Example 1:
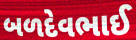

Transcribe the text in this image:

બળદેવભાઈ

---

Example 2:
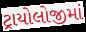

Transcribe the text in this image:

ટ્રાયોલોજીમાં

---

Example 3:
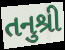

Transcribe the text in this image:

તનુશ્રી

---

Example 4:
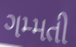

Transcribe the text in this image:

ગમ્મતી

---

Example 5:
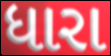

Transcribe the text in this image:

ધારા